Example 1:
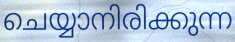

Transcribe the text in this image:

ചെയ്യാനിരിക്കുന്ന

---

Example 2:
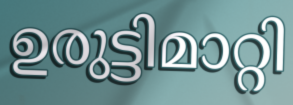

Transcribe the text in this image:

ഉരുട്ടിമാറ്റി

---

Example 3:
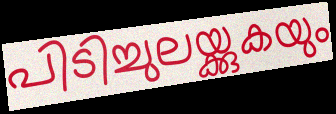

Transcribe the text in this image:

പിടിച്ചുലയ്ക്കുകയും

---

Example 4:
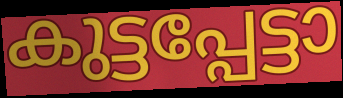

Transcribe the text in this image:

കുട്ടപ്പേട്ടാ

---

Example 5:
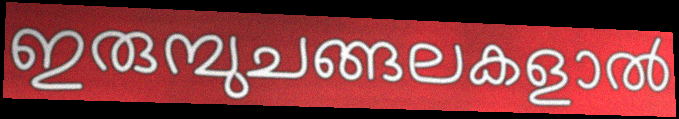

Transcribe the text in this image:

ഇരുമ്പുചങ്ങലകളാൽ